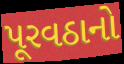
પૂરવઠાનો